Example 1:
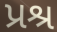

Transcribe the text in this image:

પ્રશ્ર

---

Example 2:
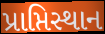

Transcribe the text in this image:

પ્રાપ્તિસ્થાન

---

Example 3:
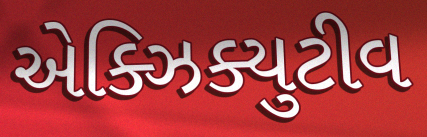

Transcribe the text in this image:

એક્ઝિક્યુટીવ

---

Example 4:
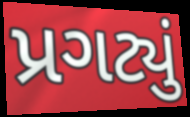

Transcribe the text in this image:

પ્રગટ્યું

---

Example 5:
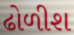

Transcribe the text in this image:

ઢોળીશ